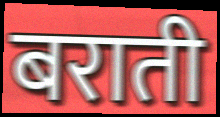
बराती